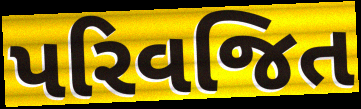
પરિવજિત